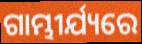
ଗାମ୍ଭୀର୍ଯ୍ୟରେ